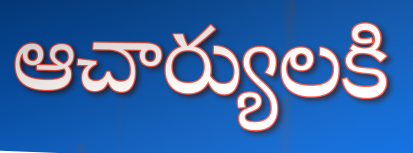
ఆచార్యులకి